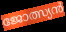
ജോത്സ്യൻ